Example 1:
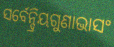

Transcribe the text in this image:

ସର୍ବେନ୍ଦ୍ରିୟଗୁଣାଭାସଂ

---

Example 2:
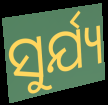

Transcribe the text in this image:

ସୁର୍ଯ୍ୟ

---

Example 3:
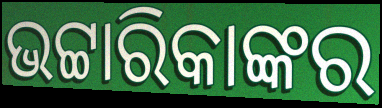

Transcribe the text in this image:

ଭଟ୍ଟାରିକାଙ୍କର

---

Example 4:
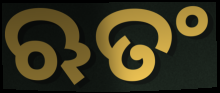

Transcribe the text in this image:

ଋତଂ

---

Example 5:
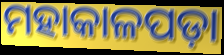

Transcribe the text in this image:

ମହାକାଳପଡ଼ା